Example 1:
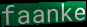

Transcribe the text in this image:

faanke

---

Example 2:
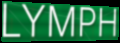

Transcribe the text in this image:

LYMPH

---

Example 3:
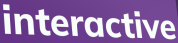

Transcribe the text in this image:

interactive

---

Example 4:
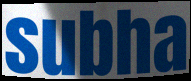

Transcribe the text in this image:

subha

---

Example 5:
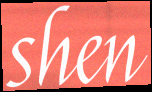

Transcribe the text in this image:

shen